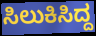
ಸಿಲುಕಿಸಿದ್ದ